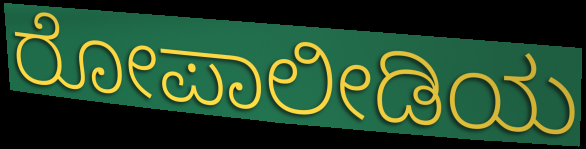
ರೋಪಾಲೀಡಿಯ